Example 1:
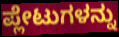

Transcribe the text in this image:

ಪ್ಲೇಟುಗಳನ್ನು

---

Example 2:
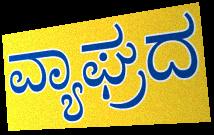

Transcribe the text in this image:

ವ್ಯಾಘ್ರದ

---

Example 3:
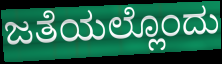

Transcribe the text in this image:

ಜತೆಯಲ್ಲೊಂದು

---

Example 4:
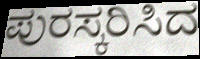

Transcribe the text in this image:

ಪುರಸ್ಕರಿಸಿದ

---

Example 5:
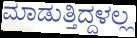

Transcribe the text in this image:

ಮಾಡುತ್ತಿದ್ದಳಲ್ಲ